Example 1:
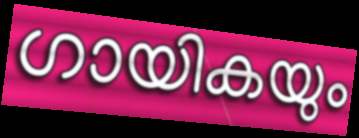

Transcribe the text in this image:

ഗായികയും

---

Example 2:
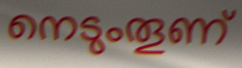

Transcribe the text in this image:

നെടുംതൂണ്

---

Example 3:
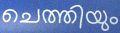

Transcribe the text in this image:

ചെത്തിയും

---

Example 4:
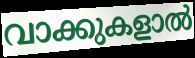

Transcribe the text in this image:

വാക്കുകളാൽ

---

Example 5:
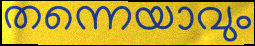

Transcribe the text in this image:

തന്നെയാവും